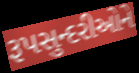
રૂપસુન્દરીઓને